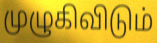
முழுகிவிடும்